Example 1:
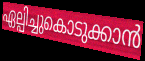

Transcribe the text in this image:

ഏല്പിച്ചുകൊടുക്കാൻ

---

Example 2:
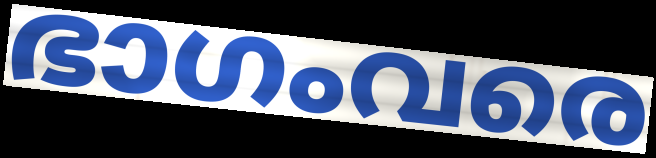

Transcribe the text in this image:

ഭാഗംവരെ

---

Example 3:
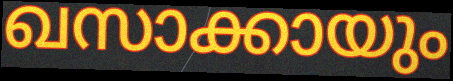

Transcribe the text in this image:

ഖസാക്കായും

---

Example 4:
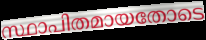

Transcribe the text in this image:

സ്ഥാപിതമായതോടെ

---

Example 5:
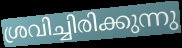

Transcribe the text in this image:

ശ്രവിച്ചിരിക്കുന്നു